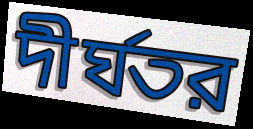
দীর্ঘতর